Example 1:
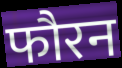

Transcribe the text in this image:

फौरन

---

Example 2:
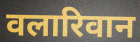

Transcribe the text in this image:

वलारिवान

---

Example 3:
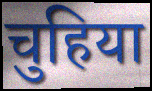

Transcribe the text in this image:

चुहिया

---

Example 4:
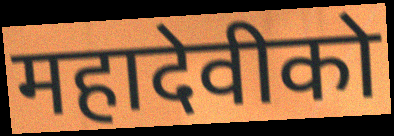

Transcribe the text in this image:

महादेवीको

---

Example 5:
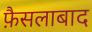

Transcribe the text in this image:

फ़ैसलाबाद